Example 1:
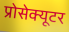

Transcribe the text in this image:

प्रोसेक्यूटर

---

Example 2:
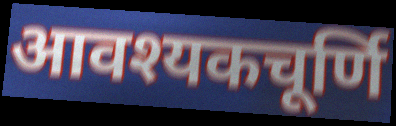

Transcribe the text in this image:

आवश्यकचूर्णि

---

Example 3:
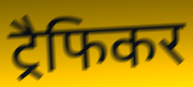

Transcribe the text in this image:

ट्रैफिकर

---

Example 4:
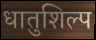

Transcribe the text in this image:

धातुशिल्प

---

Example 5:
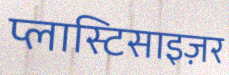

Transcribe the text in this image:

प्लास्टिसाइज़र